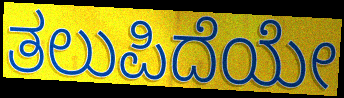
ತಲುಪಿದೆಯೇ